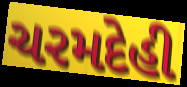
ચરમદેહી